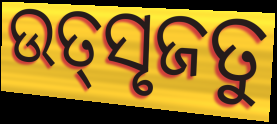
ଉତ୍‌ସୃଜତୁ